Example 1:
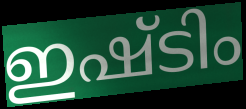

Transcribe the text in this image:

ഇഷ്ടിം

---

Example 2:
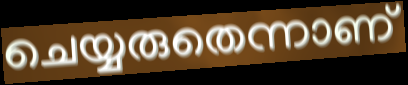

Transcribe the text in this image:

ചെയ്യരുതെന്നാണ്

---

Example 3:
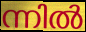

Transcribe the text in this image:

ന്നിൽ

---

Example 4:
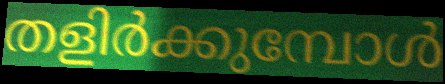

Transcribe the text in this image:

തളിർക്കുമ്പോൾ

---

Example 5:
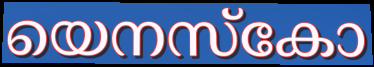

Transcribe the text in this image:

യെനസ്കോ